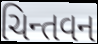
ચિન્તવન